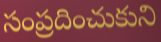
సంప్రదించుకుని